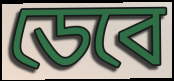
ডেবে